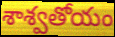
శాశ్వతోయం